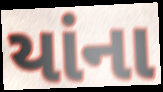
યાંના